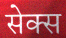
सेक्स